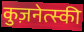
कुज़नेत्स्की